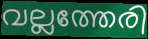
വല്ലത്തേരി